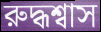
রুদ্ধশ্বাস